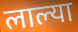
लाल्या